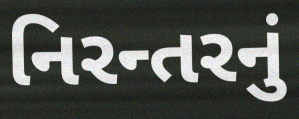
નિરન્તરનું